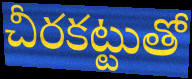
చీరకట్టుతో